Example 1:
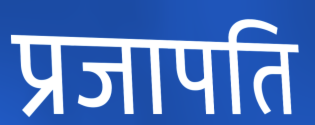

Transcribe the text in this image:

प्रजापति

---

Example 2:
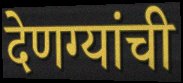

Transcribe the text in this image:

देणग्यांची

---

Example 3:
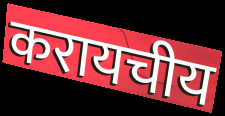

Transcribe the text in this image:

करायचीय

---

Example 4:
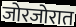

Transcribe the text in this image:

जोरजोरात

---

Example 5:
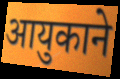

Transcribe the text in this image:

आयुकाने